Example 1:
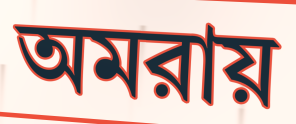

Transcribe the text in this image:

অমরায়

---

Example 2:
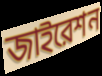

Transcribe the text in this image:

জাইরেশন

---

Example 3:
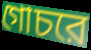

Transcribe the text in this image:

গোচরে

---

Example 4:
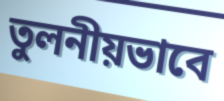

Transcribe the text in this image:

তুলনীয়ভাবে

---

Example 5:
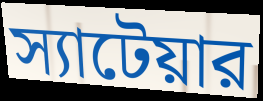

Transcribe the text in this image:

স্যাটেয়ার